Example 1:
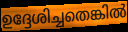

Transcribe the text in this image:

ഉദ്ദേശിച്ചതെങ്കിൽ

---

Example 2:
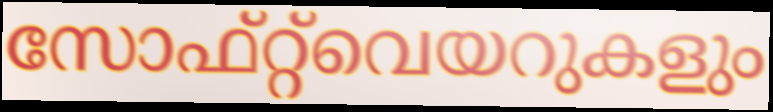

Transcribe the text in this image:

സോഫ്റ്റ്‌വെയറുകളും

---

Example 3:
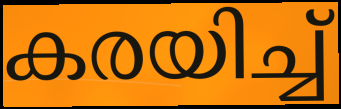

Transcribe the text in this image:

കരയിച്ച്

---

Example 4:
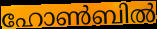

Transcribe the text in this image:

ഹോൺബിൽ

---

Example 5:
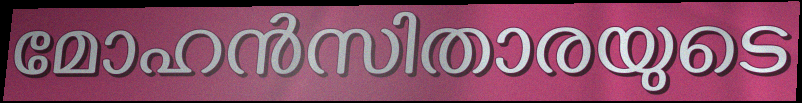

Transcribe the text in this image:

മോഹൻസിതാരയുടെ